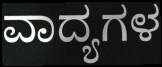
ವಾದ್ಯಗಳ